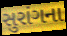
સુરાંગના